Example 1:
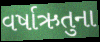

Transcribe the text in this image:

વર્ષાઋતુના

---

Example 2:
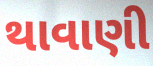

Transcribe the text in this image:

થાવાણી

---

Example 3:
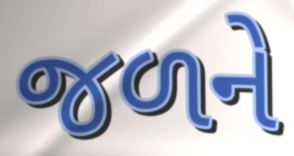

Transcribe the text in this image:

જળને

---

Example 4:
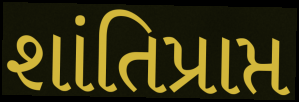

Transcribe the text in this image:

શાંતિપ્રાપ્ત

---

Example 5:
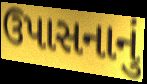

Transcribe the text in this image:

ઉપાસનાનું